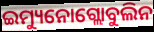
ଇମ୍ୟୁନୋଗ୍ଲୋବୁଲିନ